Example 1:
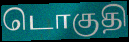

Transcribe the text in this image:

டொகுதி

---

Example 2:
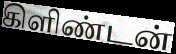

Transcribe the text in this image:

கிளிண்டன்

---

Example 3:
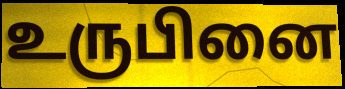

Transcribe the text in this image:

உருபினை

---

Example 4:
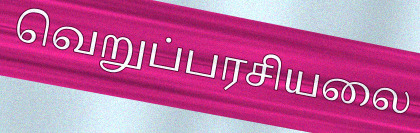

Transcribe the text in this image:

வெறுப்பரசியலை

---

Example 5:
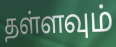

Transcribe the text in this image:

தள்ளவும்